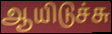
ஆயிடுச்சு